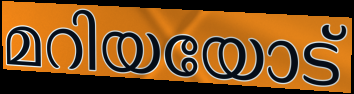
മറിയയോട്